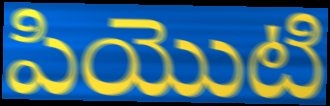
పియొటి